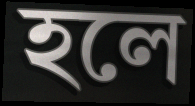
হলে